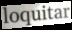
loquitar